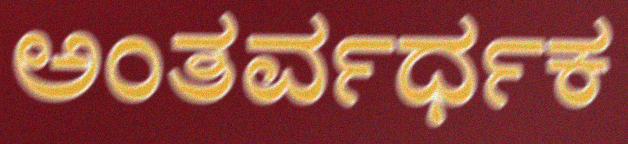
ಅಂತರ್ವರ್ಧಕ